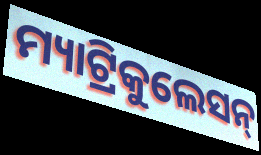
ମ୍ୟାଟ୍ରିକୁଲେସନ୍